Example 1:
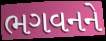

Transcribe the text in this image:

ભગવનને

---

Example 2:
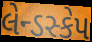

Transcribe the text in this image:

લેન્ડસ્કેપ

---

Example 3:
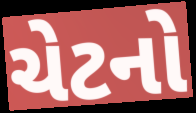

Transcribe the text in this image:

ચેટનો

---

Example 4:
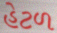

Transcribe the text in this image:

હેટળ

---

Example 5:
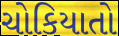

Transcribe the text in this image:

ચોકિયાતો